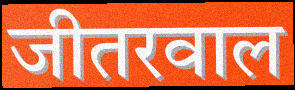
जीतरवाल